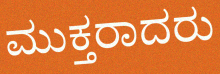
ಮುಕ್ತರಾದರು